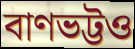
বাণভট্টও